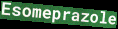
Esomeprazole